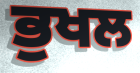
ਭੁਖਲ